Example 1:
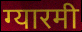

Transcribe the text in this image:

ग्यारमी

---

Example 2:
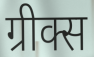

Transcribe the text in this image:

ग्रीक्स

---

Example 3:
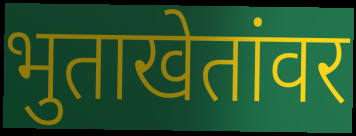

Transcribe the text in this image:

भुताखेतांवर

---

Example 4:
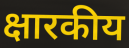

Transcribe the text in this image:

क्षारकीय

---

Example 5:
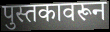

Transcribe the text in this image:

पुस्तकावरून